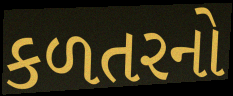
કળતરનો